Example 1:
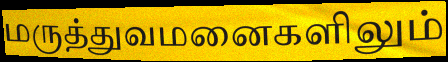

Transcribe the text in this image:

மருத்துவமனைகளிலும்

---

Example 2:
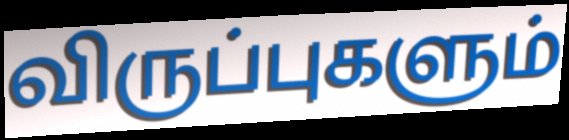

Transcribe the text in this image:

விருப்புகளும்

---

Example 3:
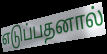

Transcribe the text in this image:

எடுப்பதனால்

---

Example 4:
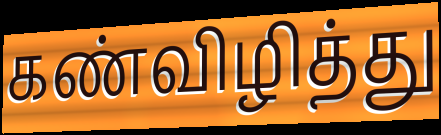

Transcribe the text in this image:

கண்விழித்து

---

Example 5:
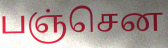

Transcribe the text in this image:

பஞ்சென